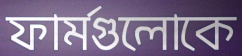
ফার্মগুলোকে